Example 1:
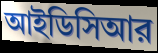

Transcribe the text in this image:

আইডিসিআর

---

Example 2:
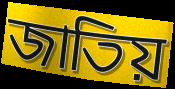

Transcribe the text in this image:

জাতিয়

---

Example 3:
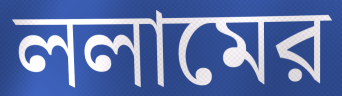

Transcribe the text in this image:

ললামের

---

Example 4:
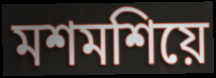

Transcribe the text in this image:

মশমশিয়ে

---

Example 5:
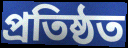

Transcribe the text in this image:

প্রতিষ্ঠত